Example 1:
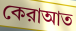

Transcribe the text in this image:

কেরাআত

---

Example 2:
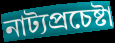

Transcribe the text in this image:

নাট্যপ্রচেষ্টা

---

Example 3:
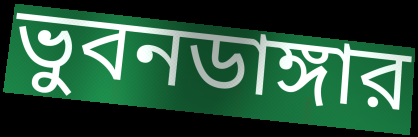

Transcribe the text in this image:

ভুবনডাঙ্গার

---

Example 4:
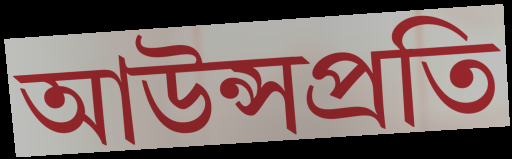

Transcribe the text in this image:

আউন্সপ্রতি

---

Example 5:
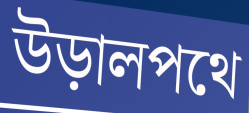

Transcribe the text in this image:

উড়ালপথে